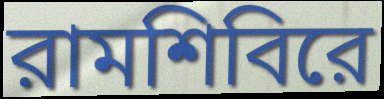
রামশিবিরে